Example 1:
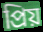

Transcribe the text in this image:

প্রিয়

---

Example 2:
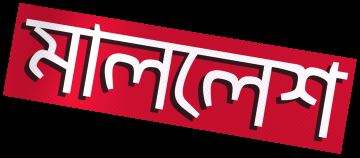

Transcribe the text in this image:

মাললেশ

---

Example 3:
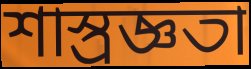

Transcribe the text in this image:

শাস্ত্রজ্ঞতা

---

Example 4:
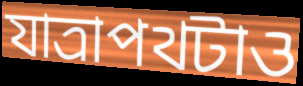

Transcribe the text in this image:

যাত্রাপথটাও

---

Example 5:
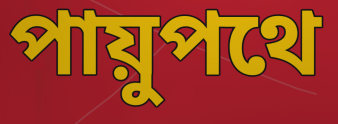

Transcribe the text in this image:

পায়ুপথে